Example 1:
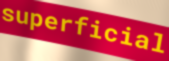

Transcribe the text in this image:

superficial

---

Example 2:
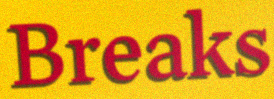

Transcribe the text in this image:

Breaks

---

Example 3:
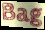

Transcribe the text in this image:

Bag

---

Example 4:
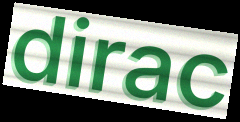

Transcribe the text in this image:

dirac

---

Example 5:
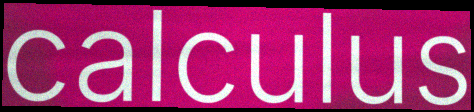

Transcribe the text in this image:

calculus